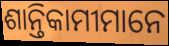
ଶାନ୍ତିକାମୀମାନେ